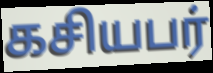
கசியபர்